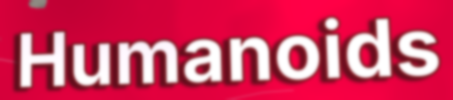
Humanoids